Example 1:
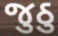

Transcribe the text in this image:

જુઠુ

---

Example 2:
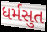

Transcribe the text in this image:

ધર્મસુત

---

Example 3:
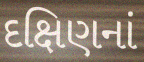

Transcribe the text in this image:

દક્ષિણનાં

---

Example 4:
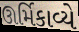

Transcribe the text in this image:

ઊર્મિકાવ્યે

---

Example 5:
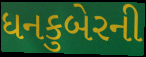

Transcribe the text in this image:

ધનકુબેરની